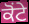
ਕੋਂਟੇ